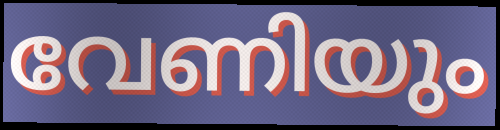
വേണിയും